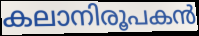
കലാനിരൂപകൻ